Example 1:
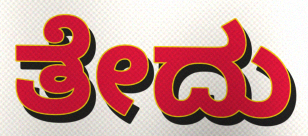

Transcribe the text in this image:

ತೇದು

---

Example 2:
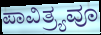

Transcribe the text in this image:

ಪಾವಿತ್ರ್ಯವೂ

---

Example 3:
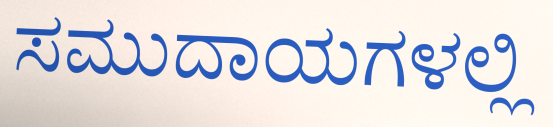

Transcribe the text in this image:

ಸಮುದಾಯಗಳಲ್ಲಿ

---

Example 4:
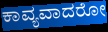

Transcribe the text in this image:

ಕಾವ್ಯವಾದರೋ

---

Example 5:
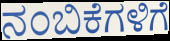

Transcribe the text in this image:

ನಂಬಿಕೆಗಳಿಗೆ